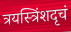
त्रयस्त्रिंशदृचं